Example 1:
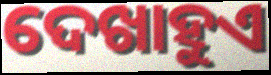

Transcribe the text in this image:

ଦେଖାହୁଏ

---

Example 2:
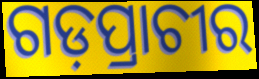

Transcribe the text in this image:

ଗଡ଼ପ୍ରାଚୀର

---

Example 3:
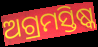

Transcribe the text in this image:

ଅଗ୍ରମସ୍ତିଷ୍କ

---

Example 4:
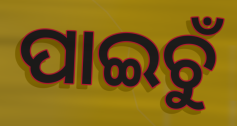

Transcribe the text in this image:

ପାଇଚୁଁ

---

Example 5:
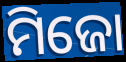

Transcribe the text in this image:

ମିଜୋ